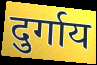
दुर्गाय